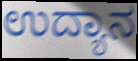
ಉದ್ಯಾನ